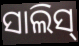
ସାଲିସ୍